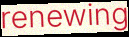
renewing